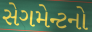
સેગમેન્ટનો